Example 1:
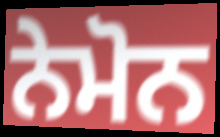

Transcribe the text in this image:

ਨੇਮੋਨ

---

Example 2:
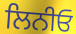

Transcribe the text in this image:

ਲਿਨੀਓ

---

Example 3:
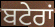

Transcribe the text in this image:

ਬਟੇਰਾਂ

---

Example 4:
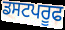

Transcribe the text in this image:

ਡਸਟਪਰੂਫ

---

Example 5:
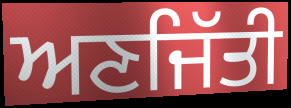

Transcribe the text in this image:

ਅਣਜਿੱਤੀ